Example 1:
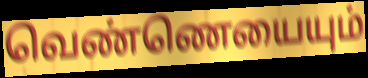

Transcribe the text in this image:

வெண்ணெயையும்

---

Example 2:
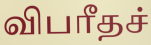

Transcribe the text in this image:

விபரீதச்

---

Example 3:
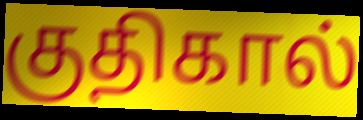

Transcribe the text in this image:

குதிகால்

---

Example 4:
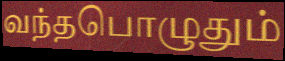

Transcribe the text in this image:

வந்தபொழுதும்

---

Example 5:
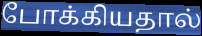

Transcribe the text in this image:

போக்கியதால்